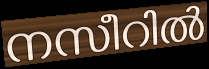
നസീറിൽ